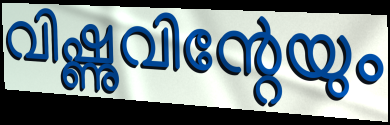
വിഷ്ണുവിന്റേയും